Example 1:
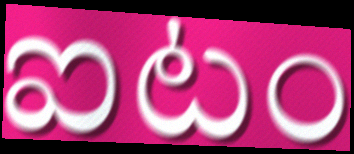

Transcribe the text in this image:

ఐటం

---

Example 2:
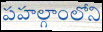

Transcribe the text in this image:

పహల్గాంలోని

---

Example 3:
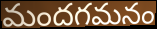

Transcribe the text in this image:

మందగమనం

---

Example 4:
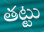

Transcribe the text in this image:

తట్టు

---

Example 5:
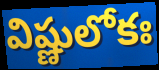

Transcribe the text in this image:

విష్ణులోకః